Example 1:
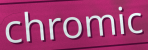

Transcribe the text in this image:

chromic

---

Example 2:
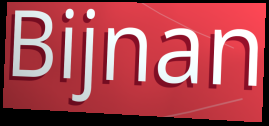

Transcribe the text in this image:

Bijnan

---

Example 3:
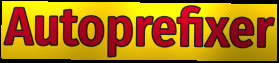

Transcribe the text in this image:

Autoprefixer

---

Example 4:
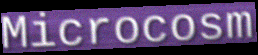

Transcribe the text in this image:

Microcosm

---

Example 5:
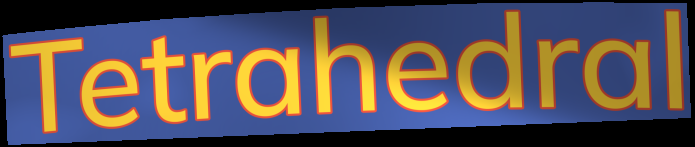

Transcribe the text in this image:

Tetrahedral